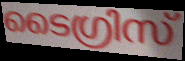
ടൈഗ്രിസ്